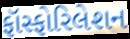
ફૉસ્ફોરિલેશન